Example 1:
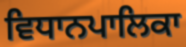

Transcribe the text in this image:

ਵਿਧਾਨਪਾਲਿਕਾ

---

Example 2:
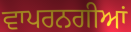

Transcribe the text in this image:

ਵਾਪਰਨਗੀਆਂ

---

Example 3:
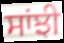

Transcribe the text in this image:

ਸਾਂਝੀ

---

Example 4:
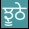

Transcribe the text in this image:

ਝੂਠੇ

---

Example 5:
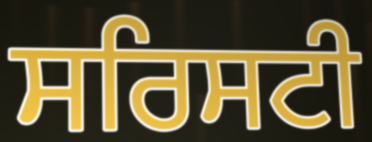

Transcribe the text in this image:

ਸਰਿਸਟੀ